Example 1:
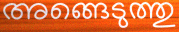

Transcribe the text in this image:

അങ്ങെടുത്തു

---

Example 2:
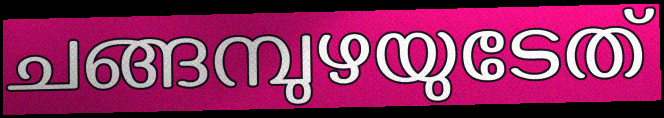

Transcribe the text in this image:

ചങ്ങമ്പുഴയുടേത്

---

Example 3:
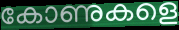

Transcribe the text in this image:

കോണുകളെ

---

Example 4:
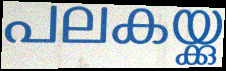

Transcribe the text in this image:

പലകയ്ക്കു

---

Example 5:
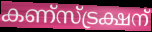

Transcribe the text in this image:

കണ്സ്ട്രക്ഷന്